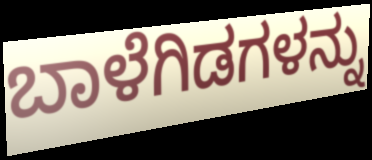
ಬಾಳೆಗಿಡಗಳನ್ನು